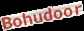
Bohudoor